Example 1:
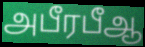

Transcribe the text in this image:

அபீரபீஆ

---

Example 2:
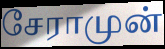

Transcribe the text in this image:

சேராமுன்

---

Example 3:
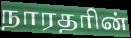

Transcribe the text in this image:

நாரதரின்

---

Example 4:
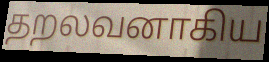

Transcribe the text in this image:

தறலவனாகிய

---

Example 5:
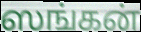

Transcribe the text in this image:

ஸங்கன்